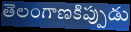
తెలంగాణకిప్పుడు